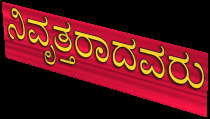
ನಿವೃತ್ತರಾದವರು